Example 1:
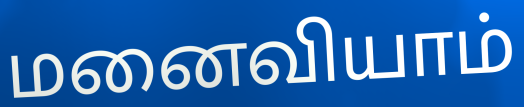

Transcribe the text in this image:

மனைவியாம்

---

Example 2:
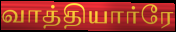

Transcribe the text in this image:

வாத்தியார்ரே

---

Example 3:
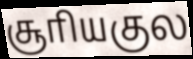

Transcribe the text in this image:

சூரியகுல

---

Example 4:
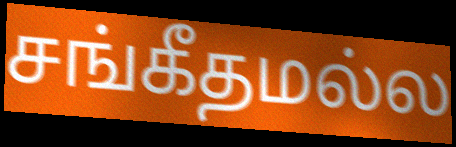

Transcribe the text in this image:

சங்கீதமல்ல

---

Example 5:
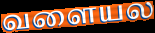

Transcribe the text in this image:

வளையல